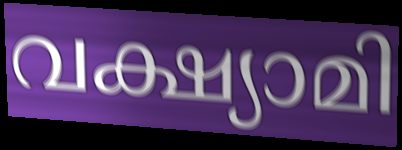
വക്ഷ്യാമി